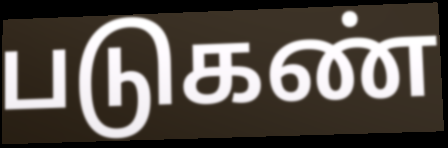
படுகண்